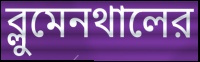
ব্লুমেনথালের